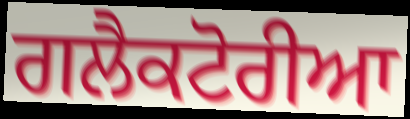
ਗਲੈਕਟੋਰੀਆ